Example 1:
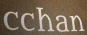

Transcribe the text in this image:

cchan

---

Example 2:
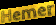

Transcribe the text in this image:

Hemer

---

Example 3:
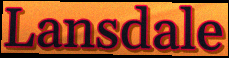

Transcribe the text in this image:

Lansdale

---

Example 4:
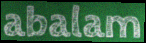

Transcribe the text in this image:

abalam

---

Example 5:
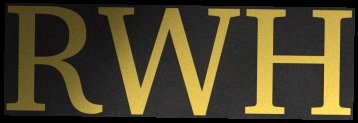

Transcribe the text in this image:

RWH